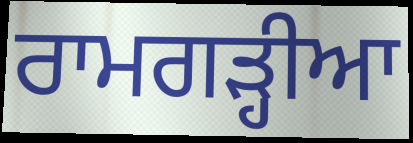
ਰਾਮਗਡ਼੍ਹੀਆ